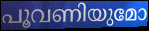
പൂവണിയുമോ